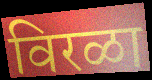
विरळा